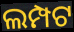
ଲମ୍ପଟ